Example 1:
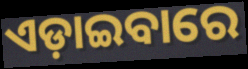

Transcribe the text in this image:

ଏଡ଼ାଇବାରେ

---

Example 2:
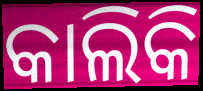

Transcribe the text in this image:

କାଲିକି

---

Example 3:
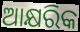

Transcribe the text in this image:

ଆକ୍ଷରିକ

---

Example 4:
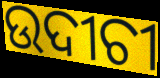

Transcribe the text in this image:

ଉଦୀଚୀ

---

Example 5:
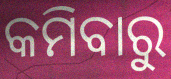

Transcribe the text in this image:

କମିବାରୁ